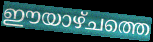
ഈയാഴ്ചത്തെ